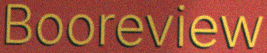
Booreview